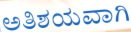
ಅತಿಶಯವಾಗಿ